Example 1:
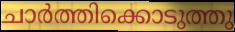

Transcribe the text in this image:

ചാർത്തിക്കൊടുത്തു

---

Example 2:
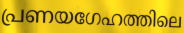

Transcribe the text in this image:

പ്രണയഗേഹത്തിലെ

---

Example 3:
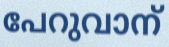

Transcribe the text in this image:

പേറുവാന്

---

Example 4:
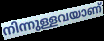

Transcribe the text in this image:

നിന്നുള്ളവയാണ്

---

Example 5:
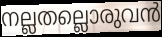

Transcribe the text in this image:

നല്ലതല്ലൊരുവൻ